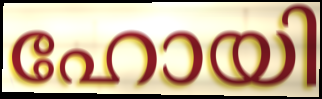
ഹോയി